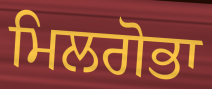
ਮਿਲਗੋਭਾ